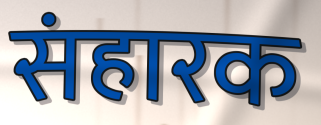
संहारक